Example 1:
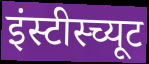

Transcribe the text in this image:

इंस्टीस्च्यूट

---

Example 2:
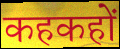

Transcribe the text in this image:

कहकहों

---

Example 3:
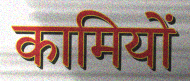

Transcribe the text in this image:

कामियों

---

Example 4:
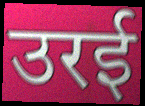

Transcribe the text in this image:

उरई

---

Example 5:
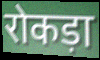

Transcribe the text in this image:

रोकड़ा